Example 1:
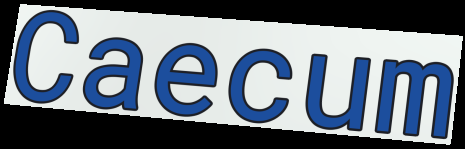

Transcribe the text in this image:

Caecum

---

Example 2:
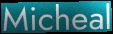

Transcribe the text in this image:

Micheal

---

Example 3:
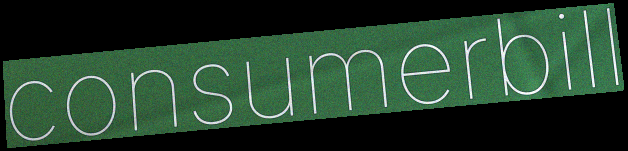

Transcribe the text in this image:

consumerbill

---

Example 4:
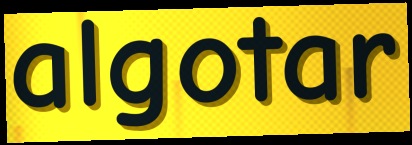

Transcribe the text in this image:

algotar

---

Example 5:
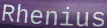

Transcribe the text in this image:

Rhenius